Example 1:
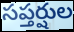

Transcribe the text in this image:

సప్తర్షుల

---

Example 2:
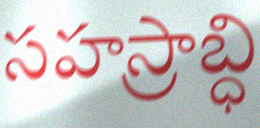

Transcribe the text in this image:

సహస్రాబ్ధి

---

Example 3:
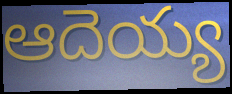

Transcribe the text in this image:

ఆదెయ్య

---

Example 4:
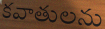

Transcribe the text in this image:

కవాతులను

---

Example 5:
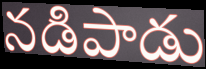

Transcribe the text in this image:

నడిపాడు